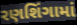
રણશિંગામાં